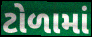
ટોળામાં